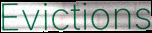
Evictions